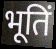
भूतिं